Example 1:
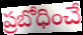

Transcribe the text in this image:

ప్రబోధించే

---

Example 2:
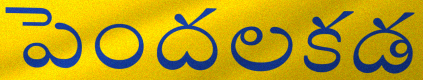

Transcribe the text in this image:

పెందలకడ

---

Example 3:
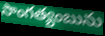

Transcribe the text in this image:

సాంగత్యంబును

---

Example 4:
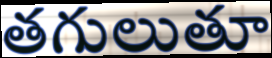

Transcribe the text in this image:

తగులుతూ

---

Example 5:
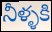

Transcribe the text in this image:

నీళ్ళకి